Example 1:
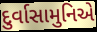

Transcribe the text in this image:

દુર્વાસામુનિએ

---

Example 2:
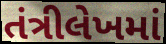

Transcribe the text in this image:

તંત્રીલેખમાં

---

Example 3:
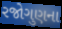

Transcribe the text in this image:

રજોગુણના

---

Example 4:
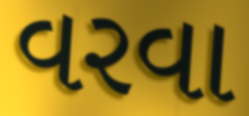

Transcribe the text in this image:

વરવા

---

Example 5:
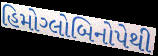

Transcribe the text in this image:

હિમોગ્લોબિનોપેથી